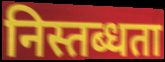
निस्तब्धता